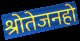
श्रोतेजनहो